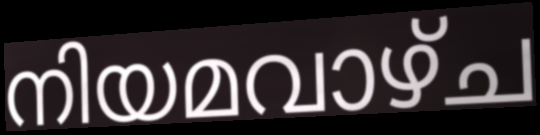
നിയമവാഴ്ച